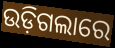
ଉଡ଼ିଗଲାରେ